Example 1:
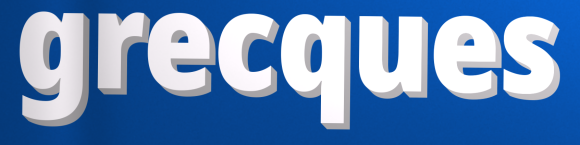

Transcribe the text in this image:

grecques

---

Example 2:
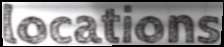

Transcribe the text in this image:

locations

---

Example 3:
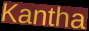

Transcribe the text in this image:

Kantha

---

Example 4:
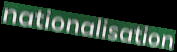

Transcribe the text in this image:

nationalisation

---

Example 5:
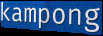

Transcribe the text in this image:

kampong